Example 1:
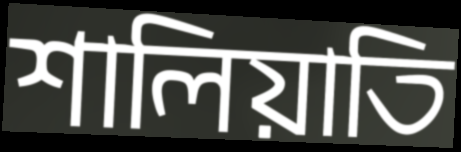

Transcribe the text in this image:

শালিয়াতি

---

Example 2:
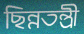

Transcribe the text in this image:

ছিন্নতন্ত্রী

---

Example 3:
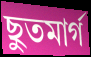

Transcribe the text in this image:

ছুতমার্গ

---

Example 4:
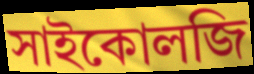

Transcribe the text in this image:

সাইকোলজি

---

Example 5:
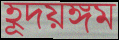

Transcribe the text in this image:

হূদয়ঙ্গম